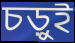
চড়ুই